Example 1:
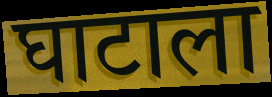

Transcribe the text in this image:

घाटाला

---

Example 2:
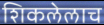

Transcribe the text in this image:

शिकलेलाच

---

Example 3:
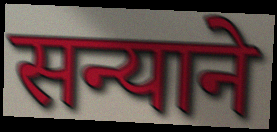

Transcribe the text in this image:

सन्याने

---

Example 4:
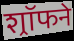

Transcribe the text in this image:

श्रॉफने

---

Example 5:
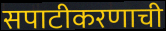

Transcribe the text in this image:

सपाटीकरणाची